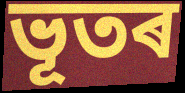
ভূতৰ